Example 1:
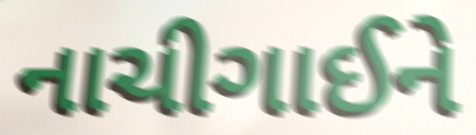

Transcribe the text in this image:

નાચીગાઈને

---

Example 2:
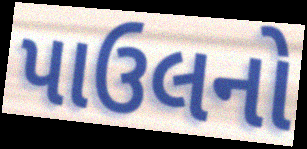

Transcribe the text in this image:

પાઉલનો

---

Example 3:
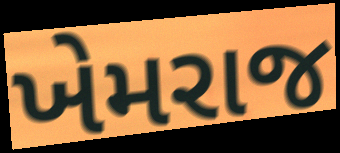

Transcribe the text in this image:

ખેમરાજ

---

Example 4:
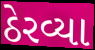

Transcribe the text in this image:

ઠેરવ્યા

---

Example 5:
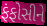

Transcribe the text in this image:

ફંફોસીને